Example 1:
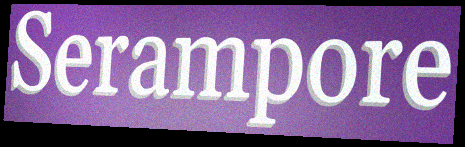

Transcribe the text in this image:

Serampore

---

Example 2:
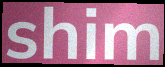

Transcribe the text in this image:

shim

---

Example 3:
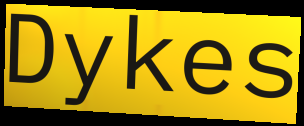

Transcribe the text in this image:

Dykes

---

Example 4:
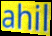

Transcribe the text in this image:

ahil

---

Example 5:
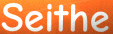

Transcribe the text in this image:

Seithe